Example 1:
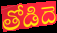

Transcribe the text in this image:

తోడిదె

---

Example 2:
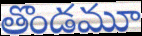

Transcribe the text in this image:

తొండమూ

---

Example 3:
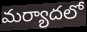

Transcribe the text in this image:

మర్యాదలో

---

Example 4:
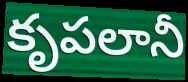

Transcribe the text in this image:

కృపలానీ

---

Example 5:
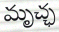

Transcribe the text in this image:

మృచ్ఛ